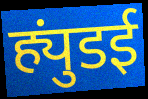
ह्युंडई